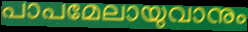
പാപമേലായുവാനും